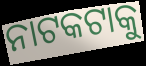
ନାଟକଟାକୁ